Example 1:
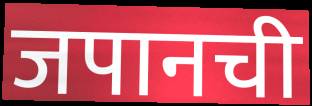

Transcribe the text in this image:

जपानची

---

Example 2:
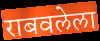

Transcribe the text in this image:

राबवलेला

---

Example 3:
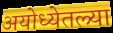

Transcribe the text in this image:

अयोध्येतल्या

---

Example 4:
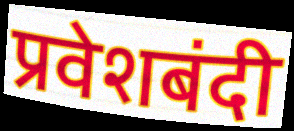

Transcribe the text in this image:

प्रवेशबंदी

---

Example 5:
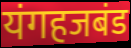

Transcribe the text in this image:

यंगहजबंड